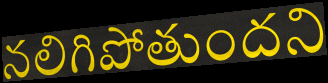
నలిగిపోతుందని